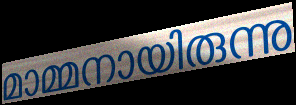
മാമ്മനായിരുന്നു